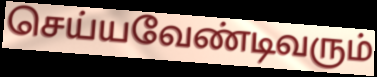
செய்யவேண்டிவரும்